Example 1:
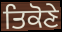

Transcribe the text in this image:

ਤਿਕੋਣੇ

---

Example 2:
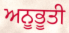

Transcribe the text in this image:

ਅਨੂਭੂਤੀ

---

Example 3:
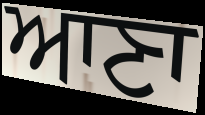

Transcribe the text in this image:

ਆਣਾ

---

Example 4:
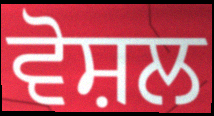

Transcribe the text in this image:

ਵੋਸ਼ਲ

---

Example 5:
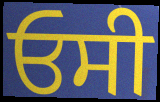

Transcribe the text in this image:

ਓਸੀ